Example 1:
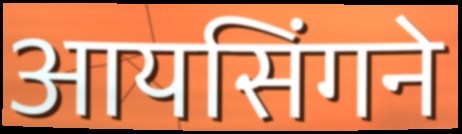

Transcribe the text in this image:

आयसिंगने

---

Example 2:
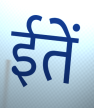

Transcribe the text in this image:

ईतें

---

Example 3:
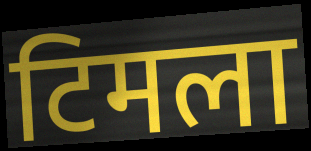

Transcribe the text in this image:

टिमला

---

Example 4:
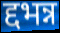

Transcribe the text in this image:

द्दभन्न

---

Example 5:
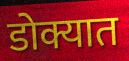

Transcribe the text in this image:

डोक्यात